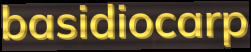
basidiocarp